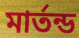
মার্তন্ড